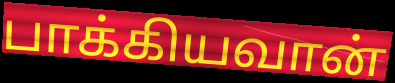
பாக்கியவான்